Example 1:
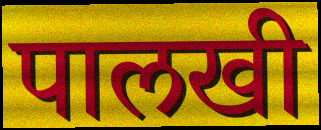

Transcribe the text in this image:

पालखी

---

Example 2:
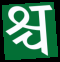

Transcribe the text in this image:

श्च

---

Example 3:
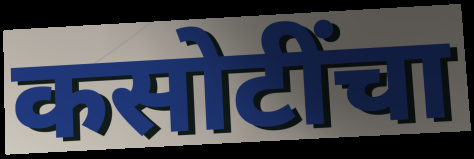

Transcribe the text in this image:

कसोटींचा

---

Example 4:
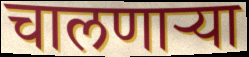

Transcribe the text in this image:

चालणाऱ्या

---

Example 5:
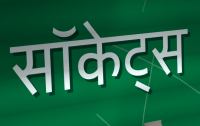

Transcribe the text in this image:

सॉकेट्स